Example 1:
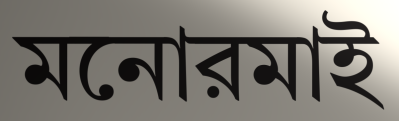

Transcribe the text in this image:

মনোরমাই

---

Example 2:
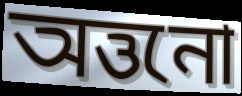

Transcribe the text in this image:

অত্তনো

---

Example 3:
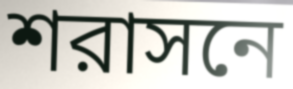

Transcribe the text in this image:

শরাসনে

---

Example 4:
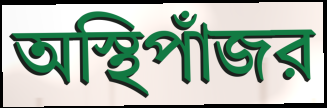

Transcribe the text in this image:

অস্থিপাঁজর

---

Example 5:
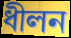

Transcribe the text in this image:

ধীলন